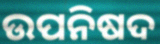
ଉପନିଷଦ